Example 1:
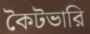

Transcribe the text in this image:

কৈটভারি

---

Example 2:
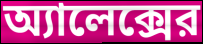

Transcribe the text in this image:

অ্যালেক্সের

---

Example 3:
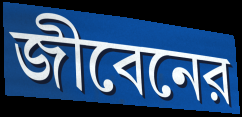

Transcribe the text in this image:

জীবেনের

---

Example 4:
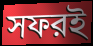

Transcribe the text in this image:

সফরই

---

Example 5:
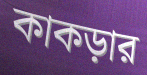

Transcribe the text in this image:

কাকড়ার